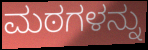
ಮಠಗಳನ್ನು